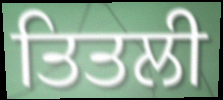
ਤਿਤਲੀ